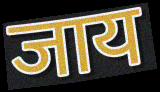
जाय